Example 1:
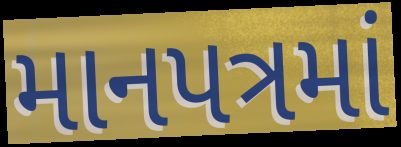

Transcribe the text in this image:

માનપત્રમાં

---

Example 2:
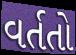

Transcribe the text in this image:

વર્તતો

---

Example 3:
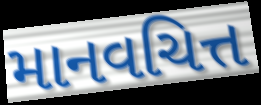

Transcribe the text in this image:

માનવચિત્ત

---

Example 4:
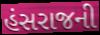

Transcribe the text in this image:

હંસરાજની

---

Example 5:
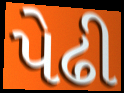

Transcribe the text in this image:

પેઢી